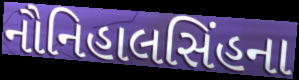
નૌનિહાલસિંહના